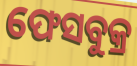
ଫେସବୁକ୍ର